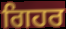
ਗਿਹਰ